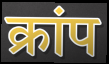
क्रांप